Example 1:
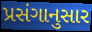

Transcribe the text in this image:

પ્રસંગાનુસાર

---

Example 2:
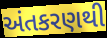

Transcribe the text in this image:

અંતકરણથી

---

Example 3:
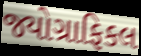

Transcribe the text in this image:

જ્યોગ્રાફિકલ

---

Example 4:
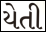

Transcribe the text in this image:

યેતી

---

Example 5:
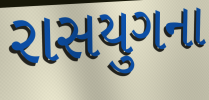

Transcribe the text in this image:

રાસયુગના